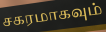
சகரமாகவும்